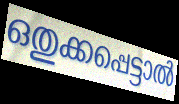
ഒതുക്കപ്പെട്ടാൽ